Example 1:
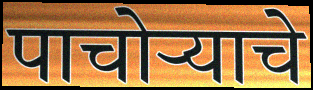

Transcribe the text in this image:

पाचोऱ्याचे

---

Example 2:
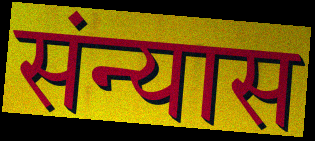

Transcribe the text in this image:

संन्यास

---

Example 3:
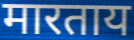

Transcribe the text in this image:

मारताय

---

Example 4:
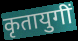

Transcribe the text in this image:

कृतायुगीं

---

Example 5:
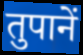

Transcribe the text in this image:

तुपानें